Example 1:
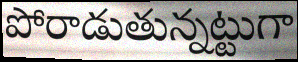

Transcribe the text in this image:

పోరాడుతున్నట్టుగా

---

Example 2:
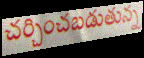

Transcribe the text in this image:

చర్చించబడుతున్న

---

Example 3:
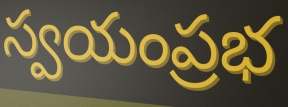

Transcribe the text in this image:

స్వయంప్రభ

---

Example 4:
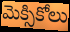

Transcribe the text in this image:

మెక్సికోలు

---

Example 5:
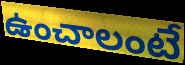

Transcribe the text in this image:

ఉంచాలంటే